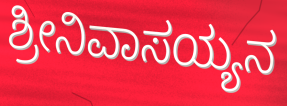
ಶ್ರೀನಿವಾಸಯ್ಯನ